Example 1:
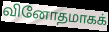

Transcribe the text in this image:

வினோதமாகக்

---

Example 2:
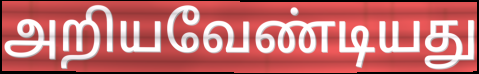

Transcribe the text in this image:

அறியவேண்டியது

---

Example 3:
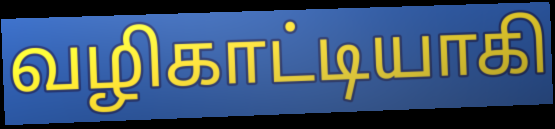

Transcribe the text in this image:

வழிகாட்டியாகி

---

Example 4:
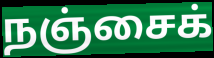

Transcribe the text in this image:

நஞ்சைக்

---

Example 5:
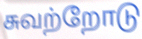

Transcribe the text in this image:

சுவற்றோடு